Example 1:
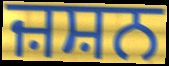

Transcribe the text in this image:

ਜ਼ਸ਼ਨ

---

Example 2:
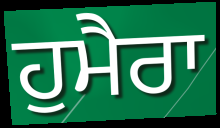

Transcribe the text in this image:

ਹੁਮੈਰਾ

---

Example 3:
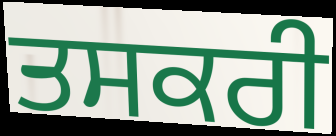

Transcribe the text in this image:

ਤਸਕਰੀ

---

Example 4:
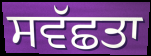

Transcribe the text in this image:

ਸਵੱਛਤਾ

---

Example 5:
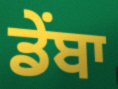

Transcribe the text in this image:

ਡੇਂਬਾ